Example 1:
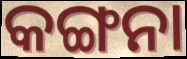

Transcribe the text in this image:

କଙ୍ଗନା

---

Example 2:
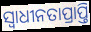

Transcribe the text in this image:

ସ୍ଵାଧୀନତାପ୍ରାପ୍ତି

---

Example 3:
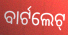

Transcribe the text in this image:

ବାର୍ଟଲେଟ୍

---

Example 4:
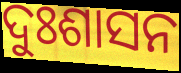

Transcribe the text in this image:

ଦୁଃଶାସନ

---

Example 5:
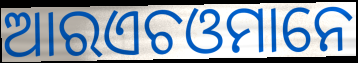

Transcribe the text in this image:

ଆରଏଚଓମାନେ